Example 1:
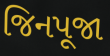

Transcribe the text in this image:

જિનપૂજા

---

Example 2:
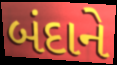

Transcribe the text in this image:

બંદાને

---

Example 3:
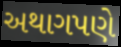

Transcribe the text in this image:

અથાગપણે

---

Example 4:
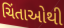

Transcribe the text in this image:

ચિંતાઓથી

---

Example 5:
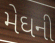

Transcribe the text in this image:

મેઘની